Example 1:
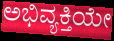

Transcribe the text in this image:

ಅಭಿವ್ಯಕ್ತಿಯೇ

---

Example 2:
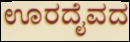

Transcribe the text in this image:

ಊರದೈವದ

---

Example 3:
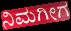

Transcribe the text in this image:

ನಿಮಗೀಗ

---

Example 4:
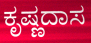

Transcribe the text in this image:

ಕೃಷ್ಣದಾಸ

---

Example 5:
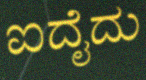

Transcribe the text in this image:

ಐದೈದು